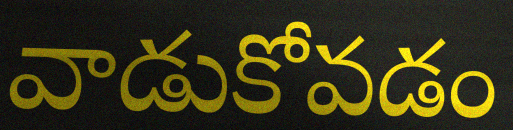
వాడుకోవడం